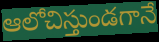
ఆలోచిస్తుండగానే